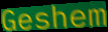
Geshem